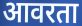
आवरता